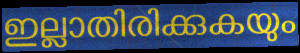
ഇല്ലാതിരിക്കുകയും